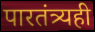
पारतंत्र्यही